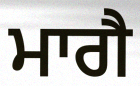
ਮਾਗੈ